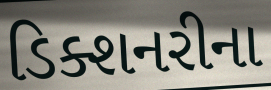
ડિક્શનરીના